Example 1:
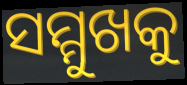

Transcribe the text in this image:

ସମ୍ମୁଖକୁ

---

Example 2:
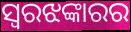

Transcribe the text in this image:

ସ୍ୱରଝଙ୍କାରର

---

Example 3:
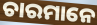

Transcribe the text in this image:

ଚାରମାନେ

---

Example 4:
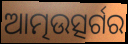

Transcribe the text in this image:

ଆତ୍ମଉତ୍ସର୍ଗର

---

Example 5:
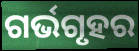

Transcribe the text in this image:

ଗର୍ଭଗୃହର